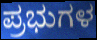
ಪ್ರಭುಗಳ